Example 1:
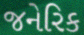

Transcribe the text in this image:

જનેરિક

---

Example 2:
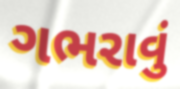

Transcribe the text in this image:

ગભરાવું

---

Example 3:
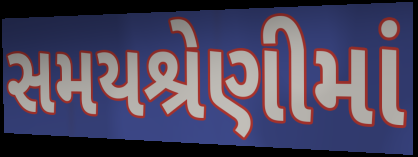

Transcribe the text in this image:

સમયશ્રેણીમાં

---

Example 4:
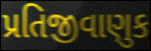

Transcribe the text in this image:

પ્રતિજીવાણુક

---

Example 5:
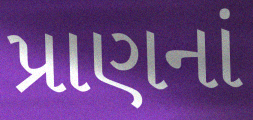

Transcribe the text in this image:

પ્રાણનાં